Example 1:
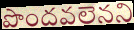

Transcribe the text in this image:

పొందవలెనని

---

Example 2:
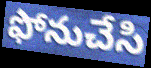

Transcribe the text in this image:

ఫోనుచేసి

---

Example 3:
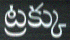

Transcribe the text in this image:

ట్రక్కు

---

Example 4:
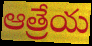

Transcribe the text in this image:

ఆత్రేయ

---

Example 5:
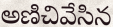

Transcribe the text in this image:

అణిచివేసిన